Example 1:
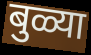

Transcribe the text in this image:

बुळ्या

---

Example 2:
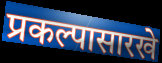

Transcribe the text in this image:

प्रकल्पासारखे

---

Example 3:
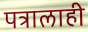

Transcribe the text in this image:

पत्रालाही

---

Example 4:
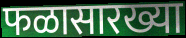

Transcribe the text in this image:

फळासारख्या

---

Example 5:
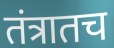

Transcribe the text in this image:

तंत्रातच